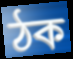
ঠক